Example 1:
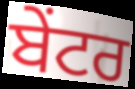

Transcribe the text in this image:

ਬੇਂਟਰ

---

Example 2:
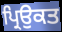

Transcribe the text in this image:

ਪ੍ਰਿਉਕਤ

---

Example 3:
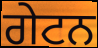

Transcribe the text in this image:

ਗੇਟਨ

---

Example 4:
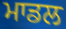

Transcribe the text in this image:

ਮਾਡਲ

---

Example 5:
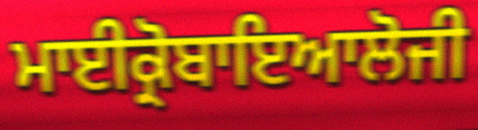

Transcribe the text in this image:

ਮਾਈਕ੍ਰੋਬਾਇਆਲੋਜੀ